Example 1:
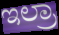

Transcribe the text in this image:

ಇಲ್ರಾ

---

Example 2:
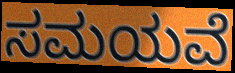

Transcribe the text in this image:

ಸಮಯವೆ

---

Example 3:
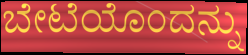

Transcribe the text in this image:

ಬೇಟೆಯೊಂದನ್ನು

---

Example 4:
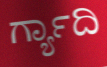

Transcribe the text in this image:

ರ್ಗ್ಯಾದಿ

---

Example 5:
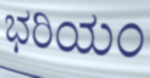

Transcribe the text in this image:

ಭರಿಯಂ